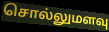
சொல்லுமளவு